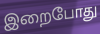
இறைபோது